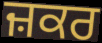
ਜ਼ਕਰ